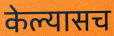
केल्यासच